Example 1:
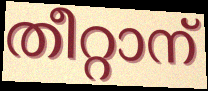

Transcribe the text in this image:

തീറ്റാന്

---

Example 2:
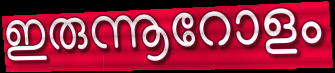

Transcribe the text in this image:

ഇരുന്നൂറോളം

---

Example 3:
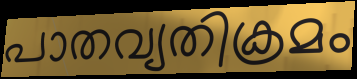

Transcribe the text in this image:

പാതവ്യതിക്രമം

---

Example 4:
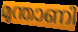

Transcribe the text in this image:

മുന്താണി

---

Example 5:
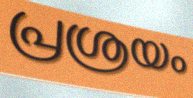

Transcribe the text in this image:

പ്രശ്രയം